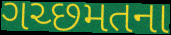
ગચ્છમતના